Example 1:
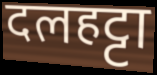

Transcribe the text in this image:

दलहट्टा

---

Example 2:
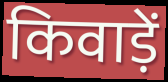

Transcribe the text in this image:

किवाड़ें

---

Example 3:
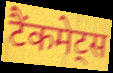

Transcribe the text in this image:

टैंकमेट्स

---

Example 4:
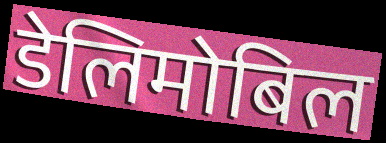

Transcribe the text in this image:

डेलिमोबिल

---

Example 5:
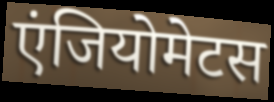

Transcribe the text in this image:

एंजियोमेटस